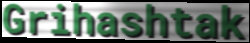
Grihashtak